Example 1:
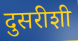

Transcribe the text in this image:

दुसरीशी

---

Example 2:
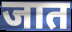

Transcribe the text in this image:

जात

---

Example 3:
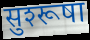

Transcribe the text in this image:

सुश्रूषा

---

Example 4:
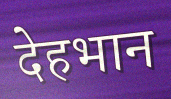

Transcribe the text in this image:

देहभान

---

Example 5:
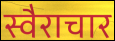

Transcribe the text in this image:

स्वैराचार